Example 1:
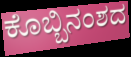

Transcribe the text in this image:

ಕೊಬ್ಬಿನಂಶದ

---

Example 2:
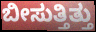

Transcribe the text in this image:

ಬೀಸುತ್ತಿತ್ತು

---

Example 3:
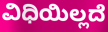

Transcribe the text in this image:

ವಿಧಿಯಿಲ್ಲದೆ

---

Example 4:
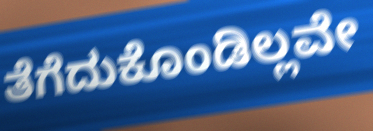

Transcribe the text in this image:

ತೆಗೆದುಕೊಂಡಿಲ್ಲವೇ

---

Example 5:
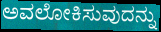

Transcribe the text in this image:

ಅವಲೋಕಿಸುವುದನ್ನು